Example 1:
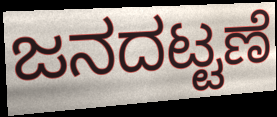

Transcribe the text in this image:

ಜನದಟ್ಟಣೆ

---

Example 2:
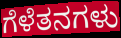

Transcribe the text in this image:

ಗೆಳೆತನಗಳು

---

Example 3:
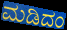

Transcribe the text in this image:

ಮಡಿದಂ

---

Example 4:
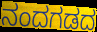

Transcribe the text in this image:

ನಂದಗಡದ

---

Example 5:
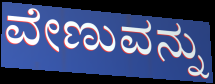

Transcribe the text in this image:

ವೇಣುವನ್ನು